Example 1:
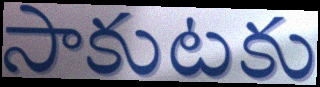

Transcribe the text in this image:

సాకుటకు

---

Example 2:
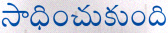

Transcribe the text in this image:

సాధించుకుంది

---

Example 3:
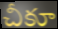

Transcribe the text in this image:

చీకూ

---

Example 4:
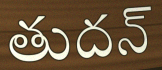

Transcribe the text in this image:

తుదన్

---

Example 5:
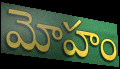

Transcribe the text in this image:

మోహం